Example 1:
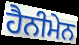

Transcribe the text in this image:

ਹੈਨੀਮੇਨ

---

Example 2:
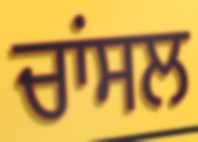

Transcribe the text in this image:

ਚਾਂਸਲ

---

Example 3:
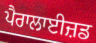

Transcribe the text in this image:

ਪੈਰਾਲਾਈਜ਼ਡ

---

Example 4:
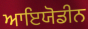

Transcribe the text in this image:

ਆਇਯੋਡੀਨ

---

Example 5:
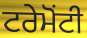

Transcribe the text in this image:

ਟਰੇਮੋਂਟੀ